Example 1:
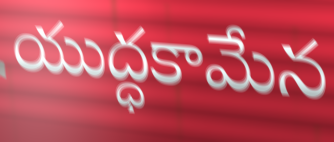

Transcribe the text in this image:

యుద్ధకామేన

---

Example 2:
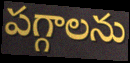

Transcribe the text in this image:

పగ్గాలను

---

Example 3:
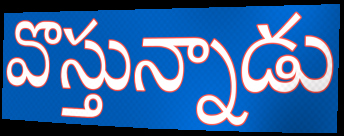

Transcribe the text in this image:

వొస్తున్నాడు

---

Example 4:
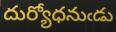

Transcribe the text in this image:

దుర్యోధనుఁడు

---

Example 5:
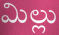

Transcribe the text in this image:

మిల్లు